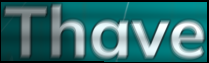
Thave